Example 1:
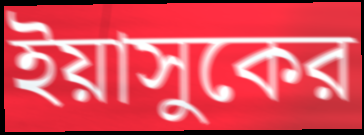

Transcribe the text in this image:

ইয়াসুকের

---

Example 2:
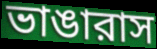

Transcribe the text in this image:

ভাঙারাস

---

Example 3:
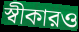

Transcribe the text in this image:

স্বীকারও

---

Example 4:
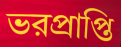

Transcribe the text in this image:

ভরপ্রাপ্তি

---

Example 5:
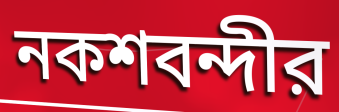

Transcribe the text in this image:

নকশবন্দীর